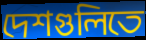
দেশগুলিতে